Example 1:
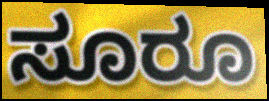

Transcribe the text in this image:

ಸೂರೂ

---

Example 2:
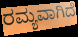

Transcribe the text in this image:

ರಮ್ಯವಾಗಿದೆ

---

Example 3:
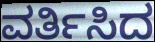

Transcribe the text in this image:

ವರ್ತಿಸಿದ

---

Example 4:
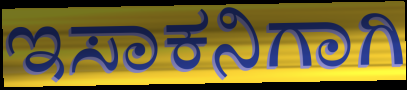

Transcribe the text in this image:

ಇಸಾಕನಿಗಾಗಿ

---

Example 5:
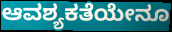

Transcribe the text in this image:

ಆವಶ್ಯಕತೆಯೇನೂ